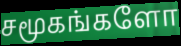
சமூகங்களோ